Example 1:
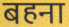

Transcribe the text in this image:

बहना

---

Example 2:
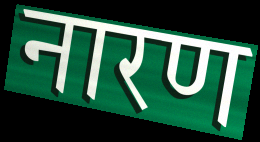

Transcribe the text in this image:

नारण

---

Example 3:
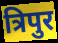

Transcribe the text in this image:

त्रिपुर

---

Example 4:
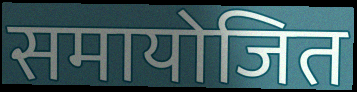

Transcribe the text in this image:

समायोजित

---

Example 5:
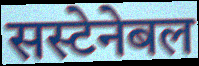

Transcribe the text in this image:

सस्टेनेबल